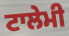
ਟਾਲੇਮੀ